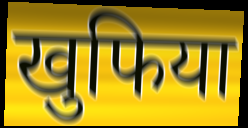
खुफिया